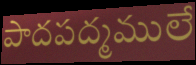
పాదపద్మములే